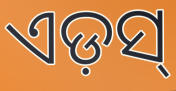
ଏଡ଼ସ୍